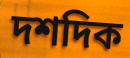
দশদিক